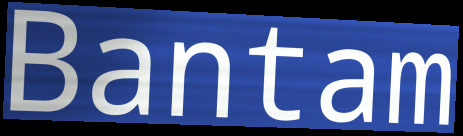
Bantam